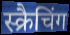
स्क्रैचिंग